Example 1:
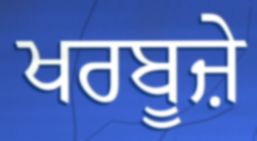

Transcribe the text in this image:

ਖਰਬੂਜ਼ੇ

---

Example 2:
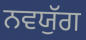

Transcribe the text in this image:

ਨਵਯੁੱਗ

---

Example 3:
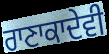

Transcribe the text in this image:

ਰਾਣਾਕਾਦੇਵੀ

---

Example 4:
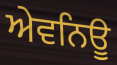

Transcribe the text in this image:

ਅੇਵਨਿਊ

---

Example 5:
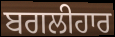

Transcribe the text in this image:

ਬਗਲੀਹਾਰ